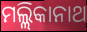
ମଲ୍ଲିକାନାଥ